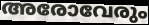
അരോവേരും